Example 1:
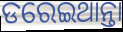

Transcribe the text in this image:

ଡରେଇଥାନ୍ତା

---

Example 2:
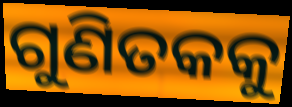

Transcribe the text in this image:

ଗୁଣିତକକୁ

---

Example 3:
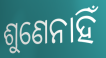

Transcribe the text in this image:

ଶୁଣେନାହିଁ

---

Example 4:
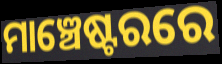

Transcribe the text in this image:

ମାଞ୍ଚେଷ୍ଟରରେ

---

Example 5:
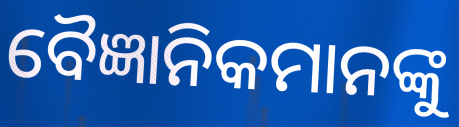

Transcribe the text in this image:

ବୈଜ୍ଞାନିକମାନଙ୍କୁ